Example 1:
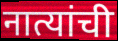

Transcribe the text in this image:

नात्यांची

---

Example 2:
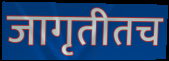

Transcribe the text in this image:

जागृतीतच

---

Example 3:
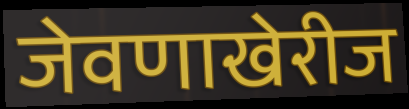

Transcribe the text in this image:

जेवणाखेरीज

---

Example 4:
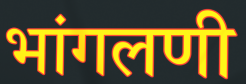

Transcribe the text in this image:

भांगलणी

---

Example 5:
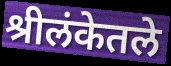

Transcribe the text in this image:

श्रीलंकेतले